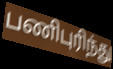
பணிபுரிந்து